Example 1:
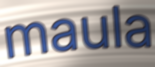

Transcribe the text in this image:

maula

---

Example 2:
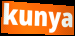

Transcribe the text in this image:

kunya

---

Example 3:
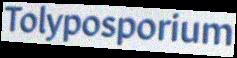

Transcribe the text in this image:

Tolyposporium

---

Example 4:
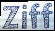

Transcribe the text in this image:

Ziff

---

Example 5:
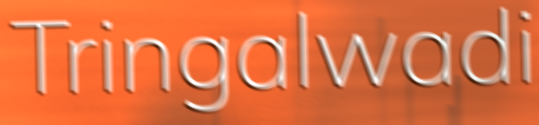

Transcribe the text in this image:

Tringalwadi